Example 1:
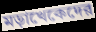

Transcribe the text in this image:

মড়াখেকেদের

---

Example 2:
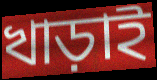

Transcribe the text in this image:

খাড়াই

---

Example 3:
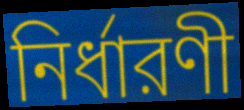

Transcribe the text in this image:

নির্ধারণী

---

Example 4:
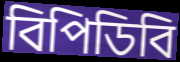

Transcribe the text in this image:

বিপিডিবি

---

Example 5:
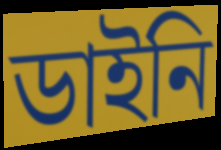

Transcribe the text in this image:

ডাইনি